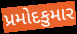
પ્રમોદકુમાર